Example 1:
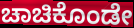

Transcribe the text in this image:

ಚಾಚಿಕೊಂಡೇ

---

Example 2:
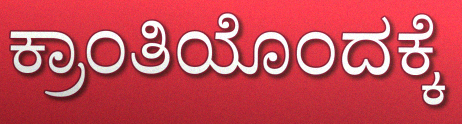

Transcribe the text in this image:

ಕ್ರಾಂತಿಯೊಂದಕ್ಕೆ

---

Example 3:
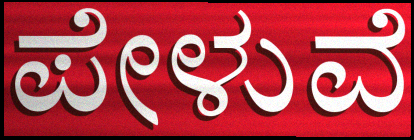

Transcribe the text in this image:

ಪೇಳುವೆ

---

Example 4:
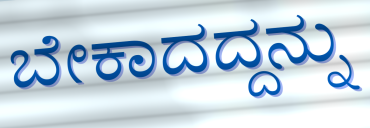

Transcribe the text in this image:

ಬೇಕಾದದ್ದನ್ನು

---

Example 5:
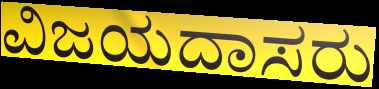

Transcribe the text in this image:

ವಿಜಯದಾಸರು